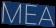
MEA